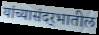
यांच्यासंदर्भातील